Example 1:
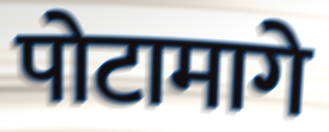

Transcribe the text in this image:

पोटामागे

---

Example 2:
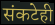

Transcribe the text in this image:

संकटेही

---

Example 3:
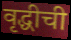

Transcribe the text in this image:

वृद्धीची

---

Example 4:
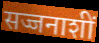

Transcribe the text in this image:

सज्जनाशीं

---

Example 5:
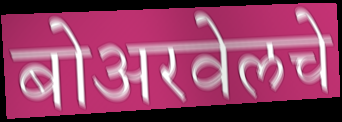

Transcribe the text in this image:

बोअरवेलचे